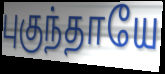
புகுந்தாயே